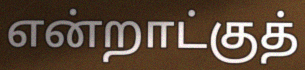
என்றாட்குத்